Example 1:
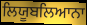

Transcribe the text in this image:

ਲਿਯੂਬਲਿਆਨਾ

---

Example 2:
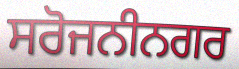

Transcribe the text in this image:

ਸਰੋਜਨੀਨਗਰ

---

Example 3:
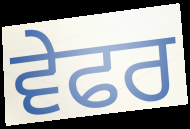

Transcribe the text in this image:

ਵੇਫਰ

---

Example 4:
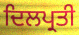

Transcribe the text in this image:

ਦਿਲਪ੍ਰਤੀ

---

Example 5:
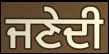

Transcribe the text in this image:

ਜਣੇਦੀ